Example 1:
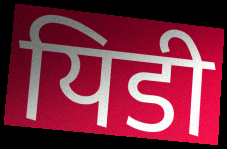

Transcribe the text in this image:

यिडी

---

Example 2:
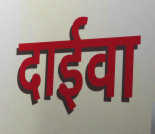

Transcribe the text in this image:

दाईवा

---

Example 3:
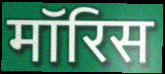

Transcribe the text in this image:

मॉरिस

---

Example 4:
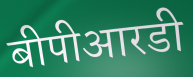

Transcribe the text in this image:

बीपीआरडी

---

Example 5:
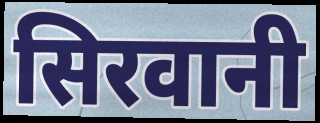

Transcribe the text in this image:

सिरवानी